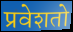
प्रवेशतो